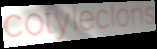
cotyleclons